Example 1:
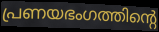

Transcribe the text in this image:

പ്രണയഭംഗത്തിന്റെ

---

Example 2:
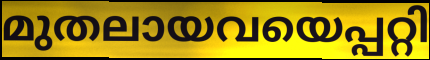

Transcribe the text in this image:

മുതലായവയെപ്പറ്റി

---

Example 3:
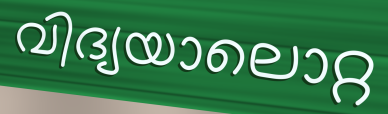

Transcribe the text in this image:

വിദ്യയാലൊറ്റ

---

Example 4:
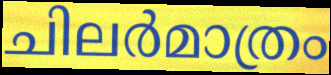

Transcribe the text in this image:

ചിലർമാത്രം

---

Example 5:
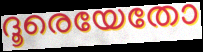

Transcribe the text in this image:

ദൂരെയേതോ